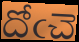
దోఁచె